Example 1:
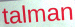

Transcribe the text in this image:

talman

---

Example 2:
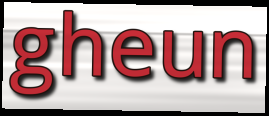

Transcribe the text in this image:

gheun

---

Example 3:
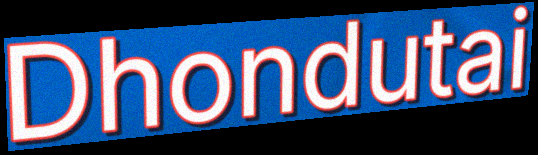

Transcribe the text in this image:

Dhondutai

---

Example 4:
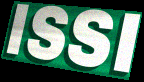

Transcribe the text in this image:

ISSI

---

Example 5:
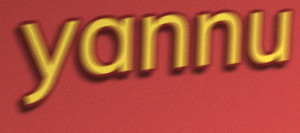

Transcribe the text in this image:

yannu